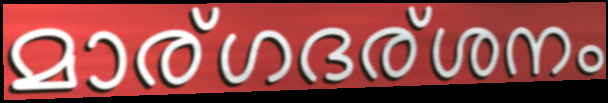
മാര്ഗദര്ശനം